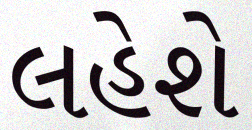
લહેશે